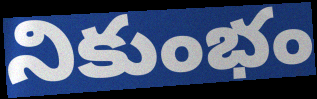
నికుంభం